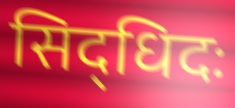
सिद्धिदः